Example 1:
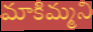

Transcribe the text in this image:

మాకిమ్మని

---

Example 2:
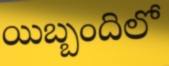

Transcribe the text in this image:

యిబ్బందిలో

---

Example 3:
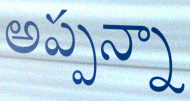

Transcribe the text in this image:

అప్పన్నా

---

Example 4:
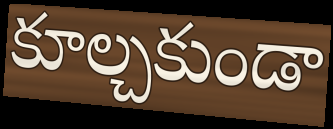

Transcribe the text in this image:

కూల్చకుండా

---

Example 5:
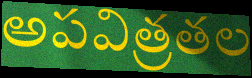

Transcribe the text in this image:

అపవిత్రతల